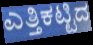
ಎತ್ತಿಕಟ್ಟಿದ